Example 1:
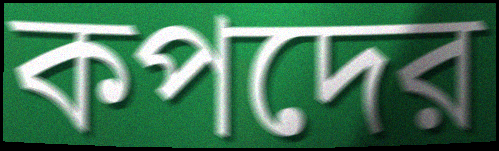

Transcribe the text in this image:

কপদের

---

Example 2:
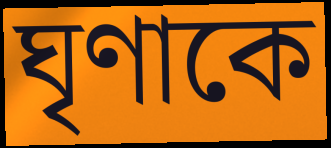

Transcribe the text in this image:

ঘৃণাকে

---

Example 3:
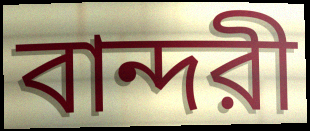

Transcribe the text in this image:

বান্দরী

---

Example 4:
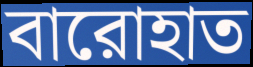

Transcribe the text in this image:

বারোহাত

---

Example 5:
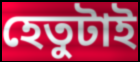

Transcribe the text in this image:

হেতুটাই